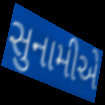
સુનામીએ